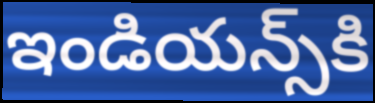
ఇండియన్స్‌కి